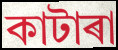
কাটাৰা